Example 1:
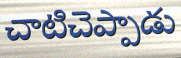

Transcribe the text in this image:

చాటిచెప్పాడు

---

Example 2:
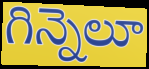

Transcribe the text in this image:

గిన్నెలూ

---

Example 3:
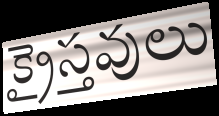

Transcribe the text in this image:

క్రైస్తవులు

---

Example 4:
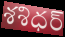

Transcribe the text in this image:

శశిధర్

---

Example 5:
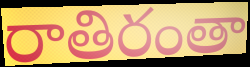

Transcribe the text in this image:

రాతిరంతా